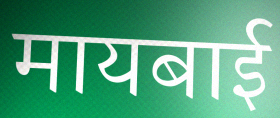
मायबाई